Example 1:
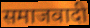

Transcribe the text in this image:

समाजवादी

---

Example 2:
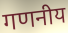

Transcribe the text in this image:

गणनीय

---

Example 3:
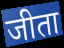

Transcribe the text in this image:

जीता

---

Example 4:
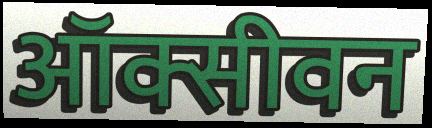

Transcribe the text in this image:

ऑक्सीवन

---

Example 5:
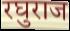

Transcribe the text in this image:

रघुराज